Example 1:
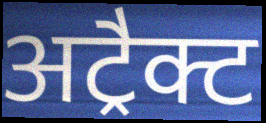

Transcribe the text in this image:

अट्रैक्ट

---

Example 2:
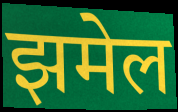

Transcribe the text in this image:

झमेल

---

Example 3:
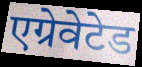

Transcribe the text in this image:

एग्रेवेटेड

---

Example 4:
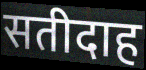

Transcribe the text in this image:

सतीदाह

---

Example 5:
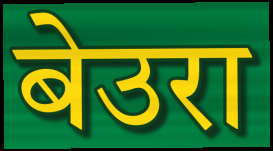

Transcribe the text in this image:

बेउरा